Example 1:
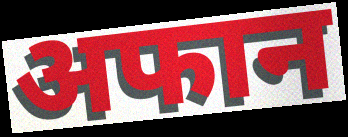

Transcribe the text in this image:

अफान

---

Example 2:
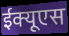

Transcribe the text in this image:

ईक्यूएस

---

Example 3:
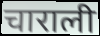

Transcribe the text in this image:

चाराली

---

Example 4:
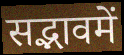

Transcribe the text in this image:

सद्भावमें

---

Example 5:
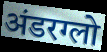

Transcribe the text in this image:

अंडरग्लो